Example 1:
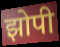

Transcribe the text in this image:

झोपी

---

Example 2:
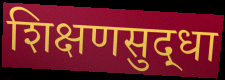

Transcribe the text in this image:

शिक्षणसुद्धा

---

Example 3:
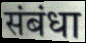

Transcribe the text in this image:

संबंधा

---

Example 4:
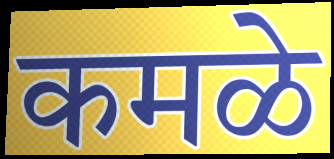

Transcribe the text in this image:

कमळे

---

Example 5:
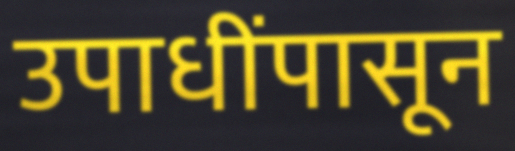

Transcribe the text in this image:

उपाधींपासून